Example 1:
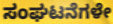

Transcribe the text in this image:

ಸಂಘಟನೆಗಳೇ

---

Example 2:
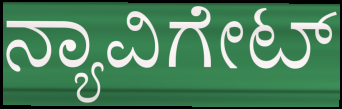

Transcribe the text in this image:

ನ್ಯಾವಿಗೇಟ್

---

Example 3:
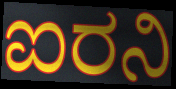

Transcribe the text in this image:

ಐರನಿ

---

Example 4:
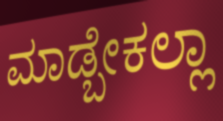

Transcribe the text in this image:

ಮಾಡ್ಬೇಕಲ್ಲಾ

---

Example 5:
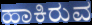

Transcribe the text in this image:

ಹಾಕಿರುವ